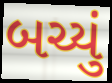
બચ્યું